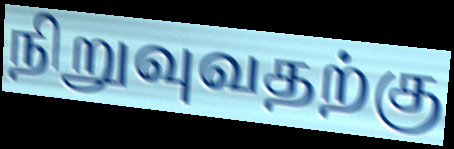
நிறுவுவதற்கு